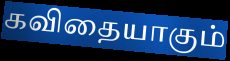
கவிதையாகும்